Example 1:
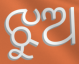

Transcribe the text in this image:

ଝୁଅ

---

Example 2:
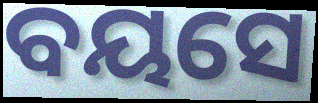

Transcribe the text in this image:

ବୟସେ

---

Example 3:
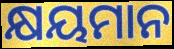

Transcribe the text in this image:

କ୍ଷୟମାନ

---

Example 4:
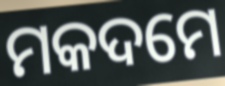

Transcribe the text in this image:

ମକଦମେ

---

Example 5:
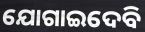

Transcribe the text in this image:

ଯୋଗାଇଦେବି